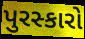
પુરસ્કારો